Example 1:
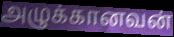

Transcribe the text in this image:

அழுக்கானவன்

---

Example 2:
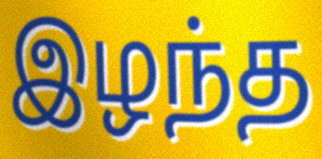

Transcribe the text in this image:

இழந்த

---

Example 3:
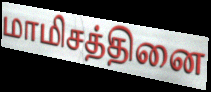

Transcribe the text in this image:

மாமிசத்தினை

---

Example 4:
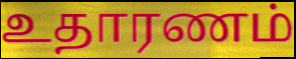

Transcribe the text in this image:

உதாரணம்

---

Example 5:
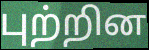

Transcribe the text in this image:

புற்றின